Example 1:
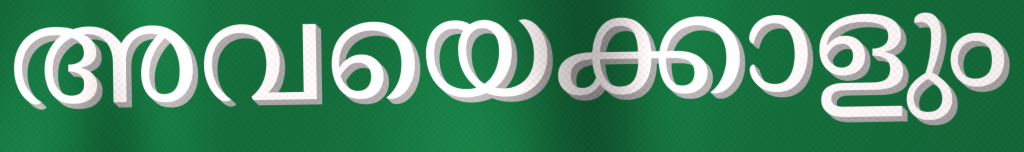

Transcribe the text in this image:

അവയെക്കാളും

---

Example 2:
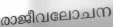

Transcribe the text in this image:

രാജീവലോചന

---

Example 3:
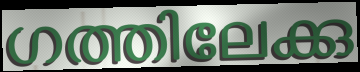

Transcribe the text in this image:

ഗത്തിലേക്കു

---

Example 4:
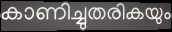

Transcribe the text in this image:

കാണിച്ചുതരികയും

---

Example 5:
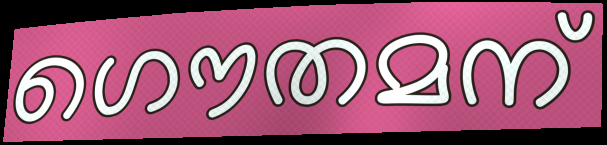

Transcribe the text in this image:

ഗൌതമന്